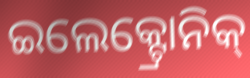
ଇଲେକ୍ଟ୍ରୋନିକ୍